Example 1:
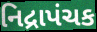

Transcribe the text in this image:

નિદ્રાપંચક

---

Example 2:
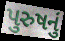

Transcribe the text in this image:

પુરુષનું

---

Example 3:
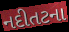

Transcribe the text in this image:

નદીતટના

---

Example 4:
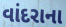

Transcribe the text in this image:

વાંદરાના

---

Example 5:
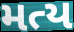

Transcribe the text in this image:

મત્ય